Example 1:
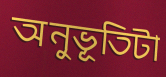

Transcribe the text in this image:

অনুভূতিটা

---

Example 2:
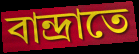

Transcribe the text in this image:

বান্দ্রাতে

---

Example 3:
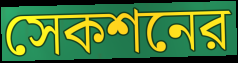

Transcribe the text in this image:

সেকশনের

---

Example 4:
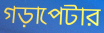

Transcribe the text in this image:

গড়াপেটার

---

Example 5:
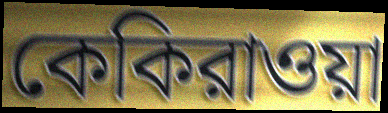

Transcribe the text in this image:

কেকিরাওয়া